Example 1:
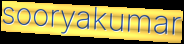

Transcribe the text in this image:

sooryakumar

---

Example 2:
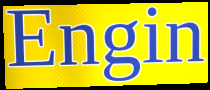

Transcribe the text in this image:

Engin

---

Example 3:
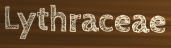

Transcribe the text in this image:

Lythraceae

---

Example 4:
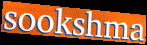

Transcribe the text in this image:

sookshma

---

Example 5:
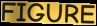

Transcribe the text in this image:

FIGURE